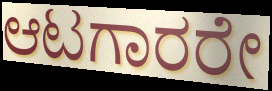
ಆಟಗಾರರೇ